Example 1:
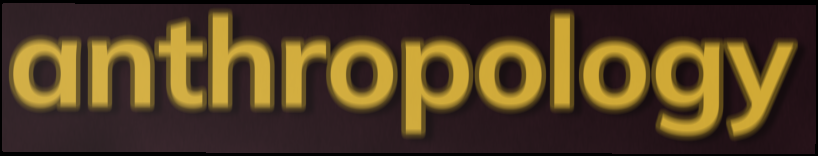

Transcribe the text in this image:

anthropology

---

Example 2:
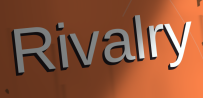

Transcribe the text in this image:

Rivalry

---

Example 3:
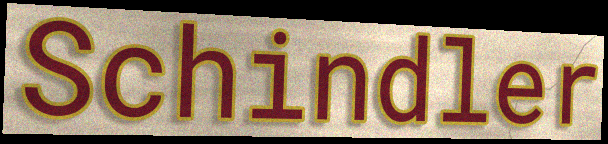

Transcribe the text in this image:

Schindler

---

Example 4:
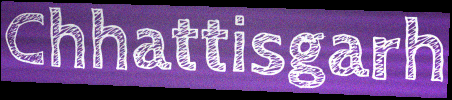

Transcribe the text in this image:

Chhattisgarh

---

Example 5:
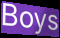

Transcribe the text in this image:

Boys